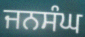
ਜਨਸੰਘ